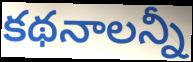
కథనాలన్నీ